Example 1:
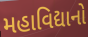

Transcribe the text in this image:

મહાવિદ્યાનો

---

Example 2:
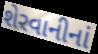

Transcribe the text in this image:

શેરવાનીનાં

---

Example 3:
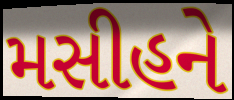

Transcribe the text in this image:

મસીહને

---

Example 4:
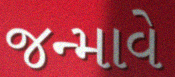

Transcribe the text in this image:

જન્માવે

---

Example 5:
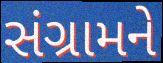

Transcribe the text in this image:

સંગ્રામને